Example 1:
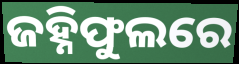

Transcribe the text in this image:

ଜହ୍ନିଫୁଲରେ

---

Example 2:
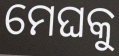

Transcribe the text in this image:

ମେଘକୁ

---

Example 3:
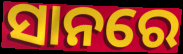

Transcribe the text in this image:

ସାନରେ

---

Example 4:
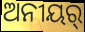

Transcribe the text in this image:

ଅନୀୟର୍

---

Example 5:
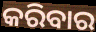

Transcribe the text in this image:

କରିବାର